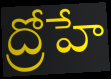
ద్రోహే